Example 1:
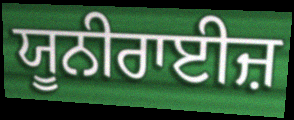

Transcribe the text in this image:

ਯੂਨੀਰਾਈਜ਼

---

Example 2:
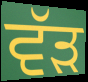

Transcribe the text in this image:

ਵੱੜ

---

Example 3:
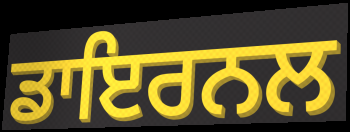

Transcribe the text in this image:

ਡਾਇਰਨਲ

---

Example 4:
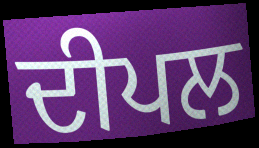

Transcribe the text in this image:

ਦੀਪਲ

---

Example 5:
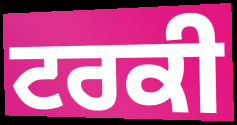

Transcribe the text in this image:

ਟਰਕੀ